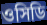
ওসিডি